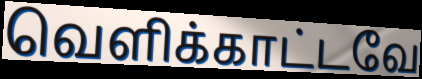
வெளிக்காட்டவே